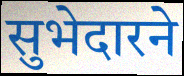
सुभेदारने